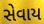
સેવાય